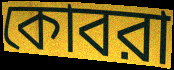
কোবরা